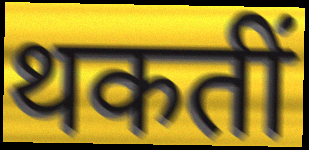
थकतीं